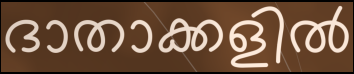
ദാതാക്കളിൽ